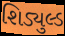
શિડ્યુલ્ડ